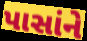
પાસાંને